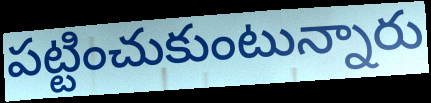
పట్టించుకుంటున్నారు